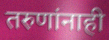
तरुणांनाही